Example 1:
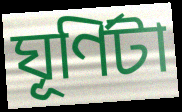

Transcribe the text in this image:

ঘূর্ণিটা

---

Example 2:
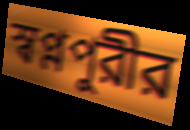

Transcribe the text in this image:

স্বপ্নপুরীর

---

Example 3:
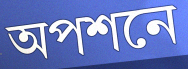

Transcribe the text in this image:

অপশনে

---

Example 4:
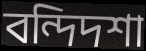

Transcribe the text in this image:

বন্দিদশা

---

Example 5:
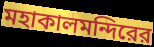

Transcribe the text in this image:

মহাকালমন্দিরের